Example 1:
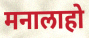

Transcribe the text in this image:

मनालाहो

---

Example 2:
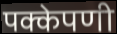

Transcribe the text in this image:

पक्केपणी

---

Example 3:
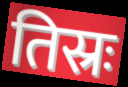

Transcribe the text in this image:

तिस्रः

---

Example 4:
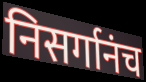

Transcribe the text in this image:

निसर्गानंच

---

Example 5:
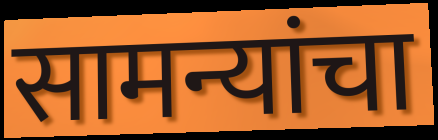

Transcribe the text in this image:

सामन्यांचा